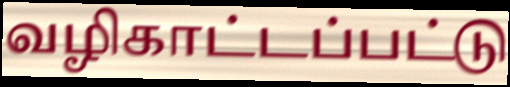
வழிகாட்டப்பட்டு